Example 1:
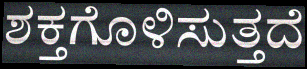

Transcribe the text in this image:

ಶಕ್ತಗೊಳಿಸುತ್ತದೆ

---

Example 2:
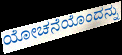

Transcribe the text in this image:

ಯೋಚನೆಯೊಂದನ್ನು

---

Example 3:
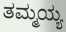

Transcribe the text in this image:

ತಮ್ಮಯ್ಯ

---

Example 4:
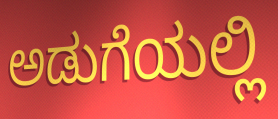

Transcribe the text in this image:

ಅಡುಗೆಯಲ್ಲಿ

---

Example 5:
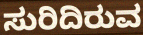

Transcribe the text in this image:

ಸುರಿದಿರುವ